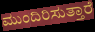
ಮುಂದಿರಿಸುತ್ತಾರೆ